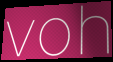
voh